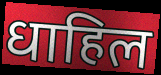
धाहिल